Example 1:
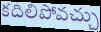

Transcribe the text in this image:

కదిలిపోవచ్చు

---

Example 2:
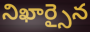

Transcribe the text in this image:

నిఖార్సైన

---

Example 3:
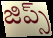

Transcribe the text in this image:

జిప్స్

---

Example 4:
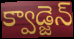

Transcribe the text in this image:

క్వాడ్జెన్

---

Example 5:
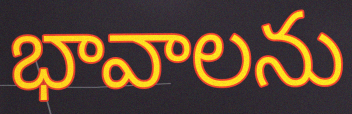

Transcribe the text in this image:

భావాలను